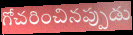
గోచరించినప్పుడు